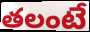
తలంటే